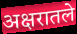
अक्षरातले